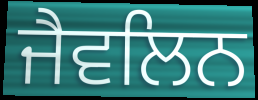
ਜੈਵਲਿਨ